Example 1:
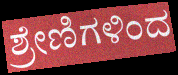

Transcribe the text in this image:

ಶ್ರೇಣಿಗಳಿಂದ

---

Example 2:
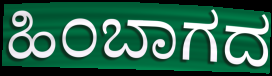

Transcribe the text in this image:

ಹಿಂಬಾಗದ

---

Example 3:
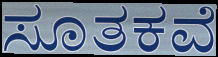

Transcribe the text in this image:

ಸೂತಕವೆ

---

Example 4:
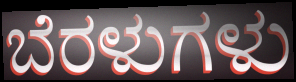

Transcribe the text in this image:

ಬೆರಳುಗಳು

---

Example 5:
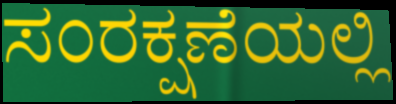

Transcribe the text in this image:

ಸಂರಕ್ಷಣೆಯಲ್ಲಿ